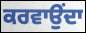
ਕਰਵਾਉਂਦਾ